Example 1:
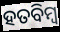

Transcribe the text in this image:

ହତବିମ୍ବ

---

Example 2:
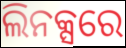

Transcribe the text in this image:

ଲିନକ୍ସରେ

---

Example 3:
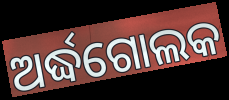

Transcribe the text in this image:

ଅର୍ଦ୍ଧଗୋଲକ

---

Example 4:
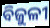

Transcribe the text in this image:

ବିଜୁଳୀ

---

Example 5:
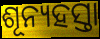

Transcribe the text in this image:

ଶୂନ୍ୟହସ୍ତା